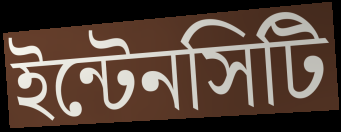
ইন্টেনসিটি